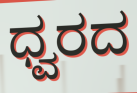
ಧ್ವರದ